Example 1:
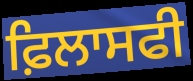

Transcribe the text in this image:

ਫ਼ਿਲਾਸਫੀ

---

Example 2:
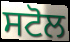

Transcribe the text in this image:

ਸਟੋਲ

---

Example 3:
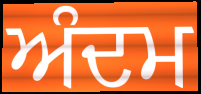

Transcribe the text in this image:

ਅੰਦਮ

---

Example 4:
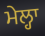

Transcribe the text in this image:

ਮੇਲ੍ਹਾ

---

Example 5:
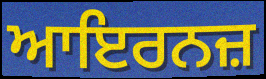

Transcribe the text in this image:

ਆਇਰਨਜ਼